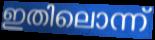
ഇതിലൊന്ന്